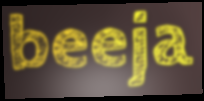
beeja